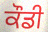
ਕੌਡੀ